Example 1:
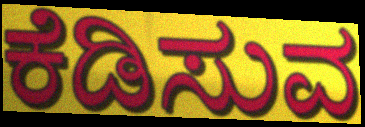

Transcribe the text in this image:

ಕೆಡಿಸುವ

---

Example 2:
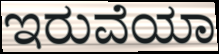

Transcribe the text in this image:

ಇರುವೆಯಾ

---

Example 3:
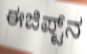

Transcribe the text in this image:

ಈಜಿಪ್ಟ್‌ನ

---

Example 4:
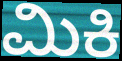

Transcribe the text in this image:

ಮಿಕಿ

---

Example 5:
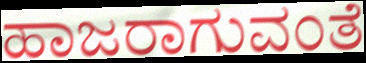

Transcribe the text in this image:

ಹಾಜರಾಗುವಂತೆ